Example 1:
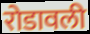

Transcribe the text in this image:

रोडावली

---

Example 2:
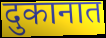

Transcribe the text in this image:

दुकानात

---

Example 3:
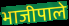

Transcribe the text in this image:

भाजीपाले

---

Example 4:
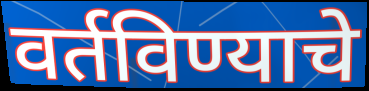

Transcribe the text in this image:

वर्तविण्याचे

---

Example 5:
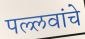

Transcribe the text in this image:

पल्लवांचे